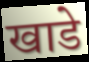
खाडे